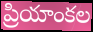
ప్రియాంకల